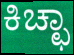
ಕಿಚ್ಛಾ